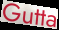
Gutta